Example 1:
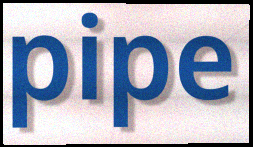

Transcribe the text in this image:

pipe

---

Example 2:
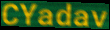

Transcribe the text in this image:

CYadav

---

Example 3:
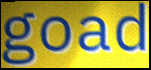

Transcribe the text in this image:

goad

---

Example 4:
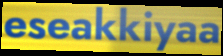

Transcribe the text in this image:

eseakkiyaa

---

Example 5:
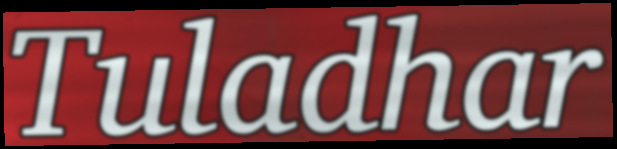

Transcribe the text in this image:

Tuladhar